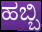
ಹಬ್ಬಿ